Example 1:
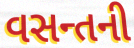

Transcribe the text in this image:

વસન્તની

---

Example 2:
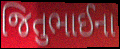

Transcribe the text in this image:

જિતુભાઈના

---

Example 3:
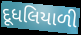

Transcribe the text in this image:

દૂધલિયાળી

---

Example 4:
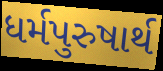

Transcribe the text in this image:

ધર્મપુરુષાર્થ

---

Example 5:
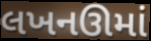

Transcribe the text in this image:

લખનઊમાં